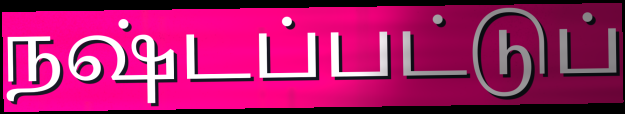
நஷ்டப்பட்டுப்